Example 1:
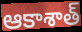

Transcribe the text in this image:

ఆకాశాత్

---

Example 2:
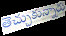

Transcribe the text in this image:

తెచ్చుకున్నారు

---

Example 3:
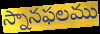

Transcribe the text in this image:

స్నానఫలము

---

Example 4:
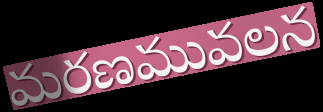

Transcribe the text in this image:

మరణమువలన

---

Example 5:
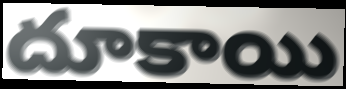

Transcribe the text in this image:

దూకాయి